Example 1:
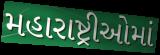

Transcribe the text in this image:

મહારાષ્ટ્રીઓમાં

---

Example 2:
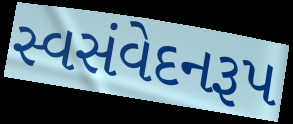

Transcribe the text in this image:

સ્વસંવેદનરૂપ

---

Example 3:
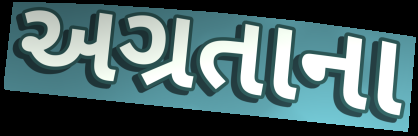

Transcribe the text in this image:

અગ્રતાના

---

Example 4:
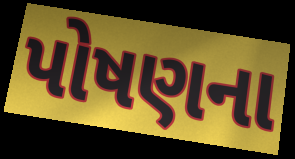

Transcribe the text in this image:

પોષણના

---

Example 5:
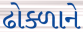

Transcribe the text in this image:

ઢોક્ળાને